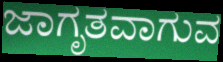
ಜಾಗೃತವಾಗುವ